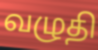
வழுதி